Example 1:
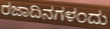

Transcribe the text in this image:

ರಜಾದಿನಗಳಂದು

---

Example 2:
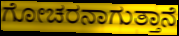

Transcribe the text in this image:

ಗೋಚರನಾಗುತ್ತಾನೆ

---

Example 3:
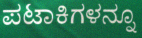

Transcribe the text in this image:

ಪಟಾಕಿಗಳನ್ನೂ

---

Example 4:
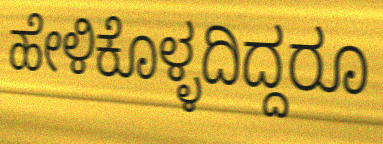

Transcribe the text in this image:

ಹೇಳಿಕೊಳ್ಳದಿದ್ದರೂ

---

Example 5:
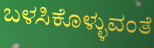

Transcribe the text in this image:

ಬಳಸಿಕೊಳ್ಳುವಂತೆ